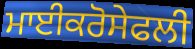
ਮਾਈਕਰੋਸੇਫਲੀ